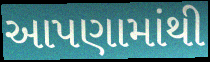
આપણામાંથી